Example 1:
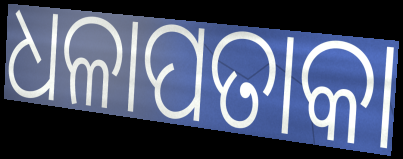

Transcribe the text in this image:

ଧଳାପତାକା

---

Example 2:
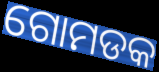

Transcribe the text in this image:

ଗୋମଡକ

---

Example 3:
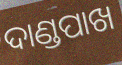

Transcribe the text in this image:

ଦାଣ୍ଡପାଖ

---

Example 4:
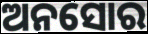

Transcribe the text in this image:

ଅନସୋର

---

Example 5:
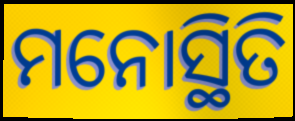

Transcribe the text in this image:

ମନୋସ୍ଥିତି